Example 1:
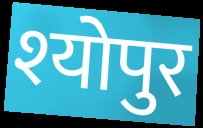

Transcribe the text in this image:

श्‍योपुर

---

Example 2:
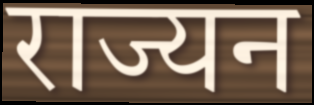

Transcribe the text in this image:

राज्यन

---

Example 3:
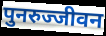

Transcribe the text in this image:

पुनरुज्जीवन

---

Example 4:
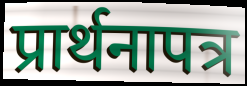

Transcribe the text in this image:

प्रार्थनापत्र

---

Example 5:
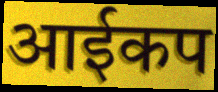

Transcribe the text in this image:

आईकप